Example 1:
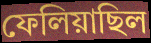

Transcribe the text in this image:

ফেলিয়াছিল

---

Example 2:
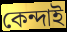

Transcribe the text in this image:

কেন্দাই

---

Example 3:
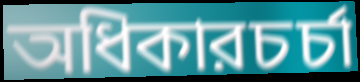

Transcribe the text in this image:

অধিকারচর্চা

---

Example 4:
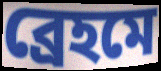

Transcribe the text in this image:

ব্রেহমে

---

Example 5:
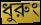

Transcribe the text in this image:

ধুরুং